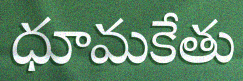
ధూమకేతు